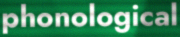
phonological